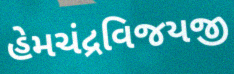
હેમચંદ્રવિજયજી